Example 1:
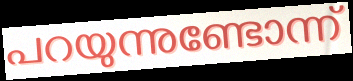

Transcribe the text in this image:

പറയുന്നുണ്ടോന്ന്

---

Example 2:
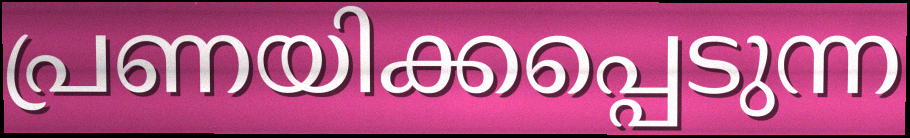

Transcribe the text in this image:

പ്രണയിക്കപ്പെടുന്ന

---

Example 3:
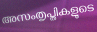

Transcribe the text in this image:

അസംതൃപ്തികളുടെ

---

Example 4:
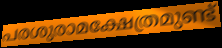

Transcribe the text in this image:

പരശുരാമക്ഷേത്രമുണ്ട്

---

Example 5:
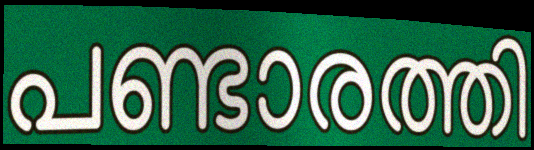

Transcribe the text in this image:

പണ്ടാരത്തി